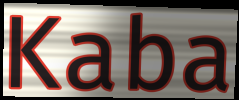
Kaba